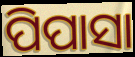
ପିପାସା